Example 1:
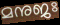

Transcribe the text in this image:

മനുജഃ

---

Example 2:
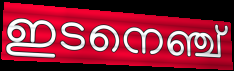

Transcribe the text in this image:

ഇടനെഞ്ച്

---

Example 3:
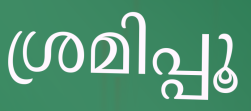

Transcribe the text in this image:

ശ്രമിപ്പൂ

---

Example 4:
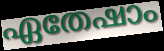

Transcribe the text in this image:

ഏതേഷാം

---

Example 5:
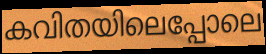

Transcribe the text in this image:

കവിതയിലെപ്പോലെ